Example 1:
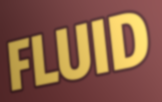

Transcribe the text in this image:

FLUID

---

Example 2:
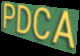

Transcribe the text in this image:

PDCA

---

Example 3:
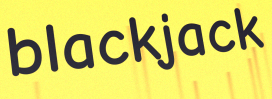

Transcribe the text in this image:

blackjack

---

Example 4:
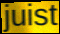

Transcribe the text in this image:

juist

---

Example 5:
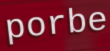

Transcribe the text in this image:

porbe